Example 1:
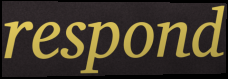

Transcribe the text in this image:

respond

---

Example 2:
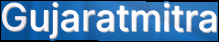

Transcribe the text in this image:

Gujaratmitra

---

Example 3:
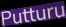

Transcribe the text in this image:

Putturu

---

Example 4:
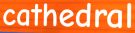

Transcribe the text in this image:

cathedral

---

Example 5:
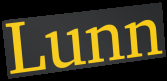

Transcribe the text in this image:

Lunn